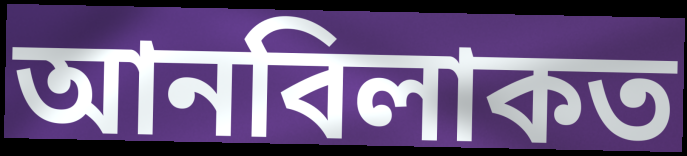
আনবিলাকত